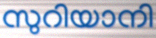
സുറിയാനി